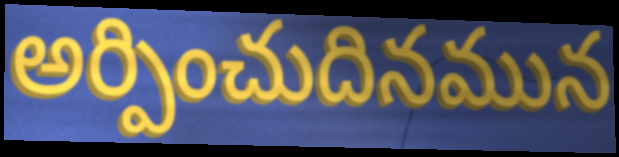
అర్పించుదినమున